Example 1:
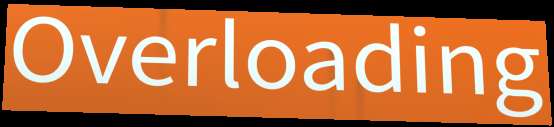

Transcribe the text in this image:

Overloading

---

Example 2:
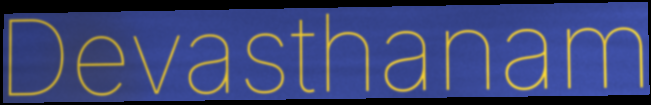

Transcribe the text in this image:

Devasthanam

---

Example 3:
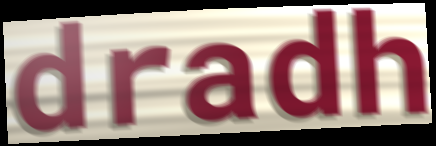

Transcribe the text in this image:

dradh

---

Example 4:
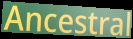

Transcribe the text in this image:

Ancestral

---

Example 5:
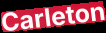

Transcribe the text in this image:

Carleton